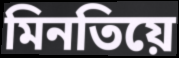
মিনতিয়ে